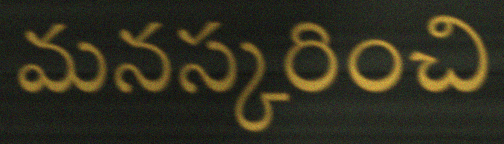
మనస్కరించి